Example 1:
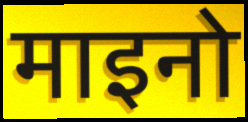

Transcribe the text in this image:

माइनो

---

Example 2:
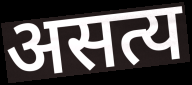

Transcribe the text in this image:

असत्य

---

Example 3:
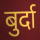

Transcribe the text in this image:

बुर्दा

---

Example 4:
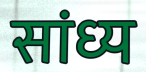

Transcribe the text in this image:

सांध्य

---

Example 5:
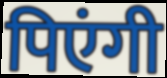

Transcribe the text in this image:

पिएंगी